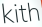
kith